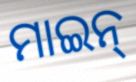
ମାଇନ୍